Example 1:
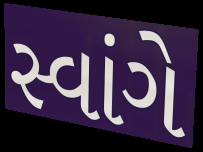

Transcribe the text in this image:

સ્વાંગે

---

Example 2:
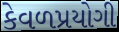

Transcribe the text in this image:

કેવળપ્રયોગી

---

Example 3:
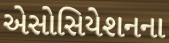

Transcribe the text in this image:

એસોસિયેશનના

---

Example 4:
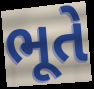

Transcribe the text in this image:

ભૂતે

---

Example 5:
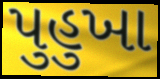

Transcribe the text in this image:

પુહુખા